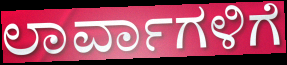
ಲಾರ್ವಾಗಳಿಗೆ